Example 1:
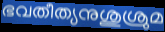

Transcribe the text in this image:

ഭവതീത്യനുശുശ്രുമ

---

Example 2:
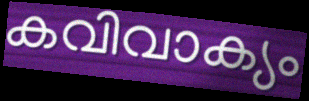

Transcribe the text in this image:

കവിവാക്യം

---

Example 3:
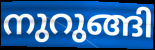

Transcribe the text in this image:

നുറുങ്ങി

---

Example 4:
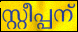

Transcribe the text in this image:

സ്റ്റീപ്പന്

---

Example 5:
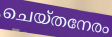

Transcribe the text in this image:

ചെയ്തനേരം